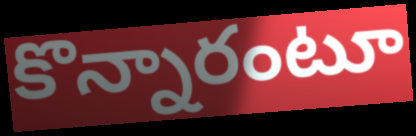
కొన్నారంటూ